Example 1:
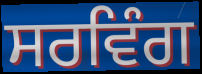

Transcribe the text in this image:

ਸਰਵਿੰਗ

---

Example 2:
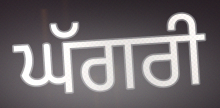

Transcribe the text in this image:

ਘੱਗਰੀ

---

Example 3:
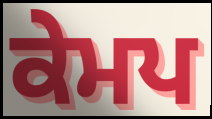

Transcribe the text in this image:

ਕੇਮਪ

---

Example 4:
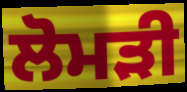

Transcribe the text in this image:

ਲੋਮੜੀ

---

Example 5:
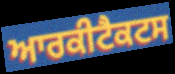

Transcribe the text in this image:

ਆਰਕੀਟੈਕਟਸ